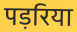
पड़रिया